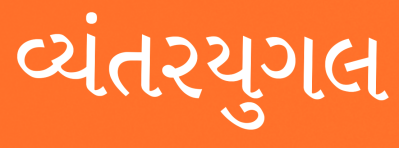
વ્યંતરયુગલ